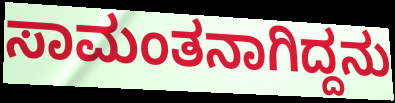
ಸಾಮಂತನಾಗಿದ್ದನು